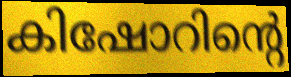
കിഷോറിന്റെ